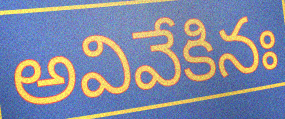
అవివేకినః